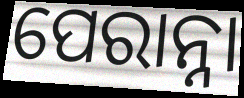
ପେରାନ୍ନା